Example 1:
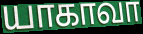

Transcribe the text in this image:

யாகாவா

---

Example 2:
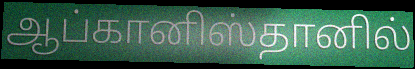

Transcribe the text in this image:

ஆப்கானிஸ்தானில்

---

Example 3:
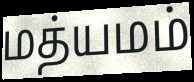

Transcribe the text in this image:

மத்யமம்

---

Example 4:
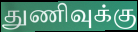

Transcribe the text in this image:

துணிவுக்கு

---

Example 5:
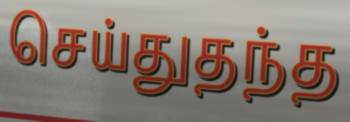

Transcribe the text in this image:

செய்துதந்த